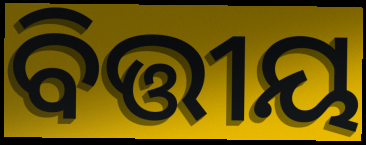
ବିତ୍ତୀୟ